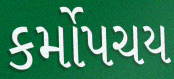
કર્મોપચય